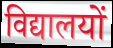
विद्यालयों